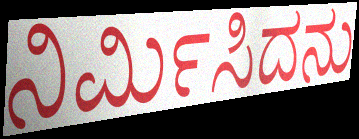
ನಿರ್ಮಿಸಿದನು